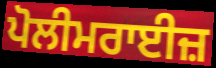
ਪੋਲੀਮਰਾਈਜ਼